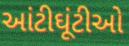
આંટીઘૂંટીઓ